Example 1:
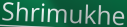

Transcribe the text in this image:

Shrimukhe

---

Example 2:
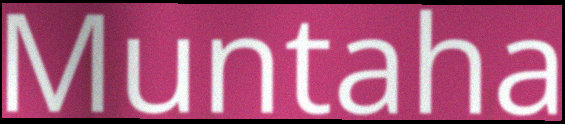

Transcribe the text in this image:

Muntaha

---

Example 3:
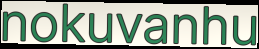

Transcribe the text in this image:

nokuvanhu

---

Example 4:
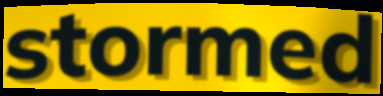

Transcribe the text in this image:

stormed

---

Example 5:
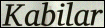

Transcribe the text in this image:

Kabilar